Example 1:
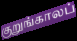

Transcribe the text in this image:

குறுங்காலப்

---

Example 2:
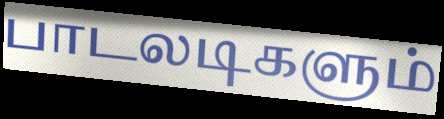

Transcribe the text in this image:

பாடலடிகளும்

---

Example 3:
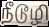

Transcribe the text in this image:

நீடூழி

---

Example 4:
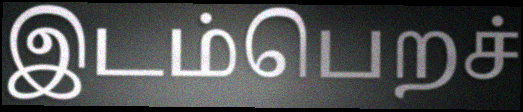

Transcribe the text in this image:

இடம்பெறச்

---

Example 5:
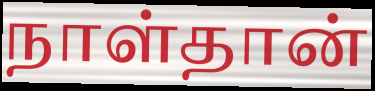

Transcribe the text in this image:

நாள்தான்